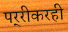
पर्रीकरही